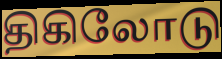
திகிலோடு